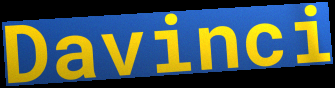
Davinci